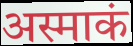
अस्माकं